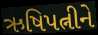
ઋષિપત્નીને